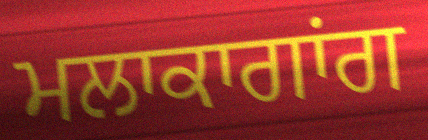
ਮਲਾਕਾਗਾਂਗ